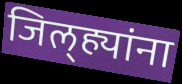
जिल्ह्यांना